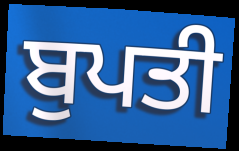
ਬੁਪਤੀ